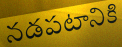
నడపటానికి